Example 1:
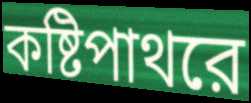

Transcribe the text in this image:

কষ্টিপাথরে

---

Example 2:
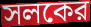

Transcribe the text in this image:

সলকের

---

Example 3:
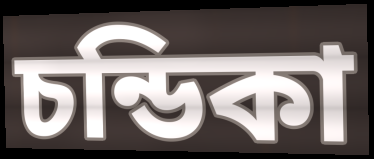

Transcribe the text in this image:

চন্ডিকা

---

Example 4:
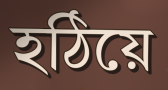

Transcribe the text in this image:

হঠিয়ে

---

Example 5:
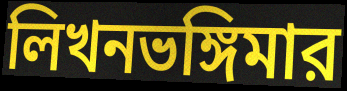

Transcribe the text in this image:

লিখনভঙ্গিমার